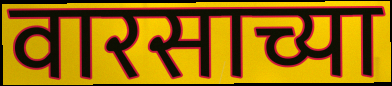
वारसाच्या